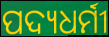
ପଦ୍ୟଧର୍ମୀ